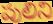
పులిని